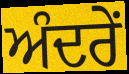
ਅੰਦਰੇਂ